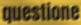
questione